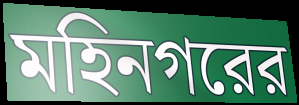
মহিনগরের